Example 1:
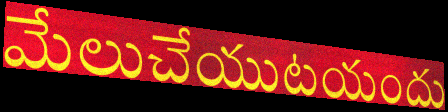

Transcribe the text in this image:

మేలుచేయుటయందు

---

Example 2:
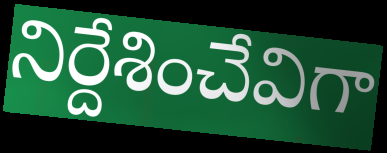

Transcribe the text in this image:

నిర్దేశించేవిగా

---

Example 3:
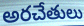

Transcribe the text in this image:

అరచేతులు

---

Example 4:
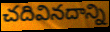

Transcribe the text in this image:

చదివినదాన్ని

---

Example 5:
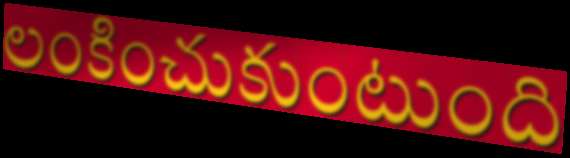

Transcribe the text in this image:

లంకించుకుంటుంది